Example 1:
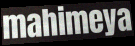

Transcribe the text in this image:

mahimeya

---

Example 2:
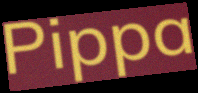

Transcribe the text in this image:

Pippa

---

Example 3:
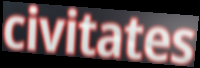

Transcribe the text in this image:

civitates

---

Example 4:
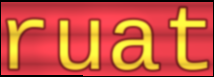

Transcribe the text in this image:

ruat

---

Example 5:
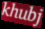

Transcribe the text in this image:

khubj